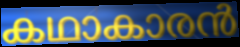
കഥാകാരൻ